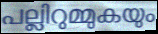
പല്ലിറുമ്മുകയും